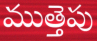
ముత్తెపు